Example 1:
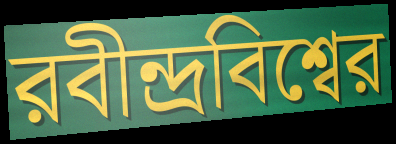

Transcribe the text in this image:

রবীন্দ্রবিশ্বের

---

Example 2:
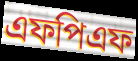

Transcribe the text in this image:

এফপিএফ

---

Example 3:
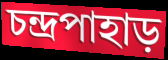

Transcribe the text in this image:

চন্দ্রপাহাড়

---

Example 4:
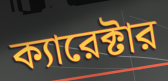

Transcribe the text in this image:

ক্যারেক্টার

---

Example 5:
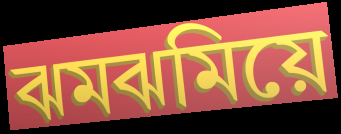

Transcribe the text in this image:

ঝমঝমিয়ে